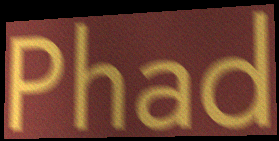
Phad